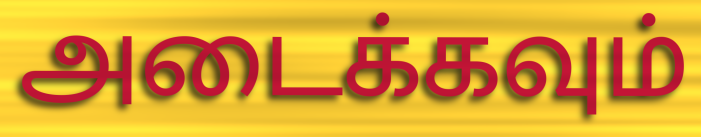
அடைக்கவும்